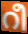
റീ